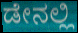
ಡೇನಲ್ಲಿ